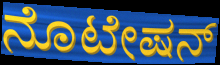
ನೊಟೇಷನ್